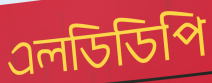
এলডিডিপি